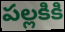
పల్లకికి